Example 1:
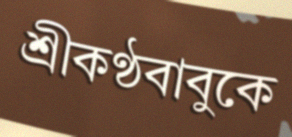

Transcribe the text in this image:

শ্রীকণ্ঠবাবুকে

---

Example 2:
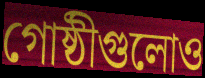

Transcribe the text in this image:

গোষ্ঠীগুলোও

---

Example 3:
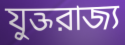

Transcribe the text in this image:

যুক্তরাজ্য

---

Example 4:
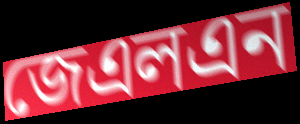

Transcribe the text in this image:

জেএলএন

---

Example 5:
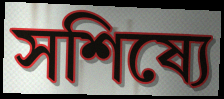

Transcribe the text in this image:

সশিষ্যে